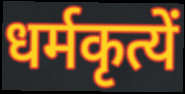
धर्मकृत्यें